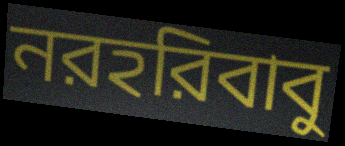
নরহরিবাবু